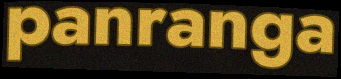
panranga